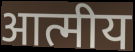
आत्मीय